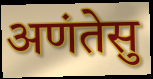
अणंतेसु